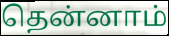
தென்னாம்